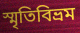
স্মৃতিবিভ্রম